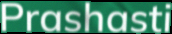
Prashasti